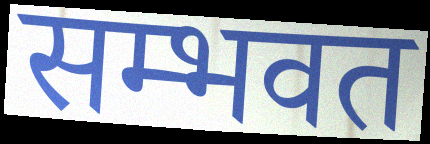
सम्भवत